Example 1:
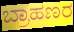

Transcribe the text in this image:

ಬ್ರಾಹಣರ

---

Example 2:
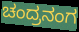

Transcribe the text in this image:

ಚಂದ್ರನಂಗ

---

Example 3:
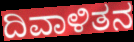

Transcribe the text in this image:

ದಿವಾಳಿತನ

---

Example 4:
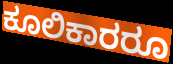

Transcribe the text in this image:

ಕೂಲಿಕಾರರೂ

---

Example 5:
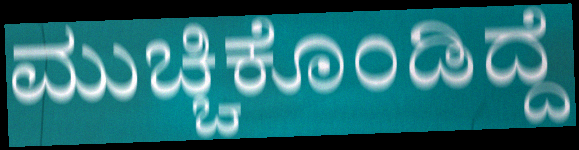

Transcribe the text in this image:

ಮುಚ್ಚಿಕೊಂಡಿದ್ದೆ